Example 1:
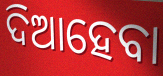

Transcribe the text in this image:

ଦିଆହେବା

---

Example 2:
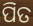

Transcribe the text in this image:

ପିତ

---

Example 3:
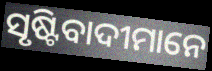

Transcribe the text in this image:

ସୃଷ୍ଟିବାଦୀମାନେ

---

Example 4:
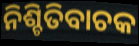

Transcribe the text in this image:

ନିଶ୍ଚିତିବାଚକ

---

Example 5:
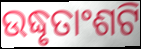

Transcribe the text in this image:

ଉଦ୍ଧୃତାଂଶଟି